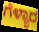
ಗೆಳ್ಯಾರ